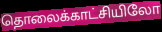
தொலைக்காட்சியிலோ